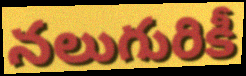
నలుగురికీ